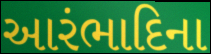
આરંભાદિના